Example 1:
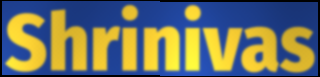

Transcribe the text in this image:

Shrinivas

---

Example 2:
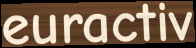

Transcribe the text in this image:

euractiv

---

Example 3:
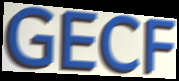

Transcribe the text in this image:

GECF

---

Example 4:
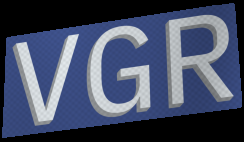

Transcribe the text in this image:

VGR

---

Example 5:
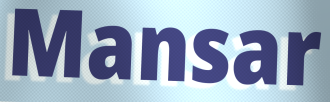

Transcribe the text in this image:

Mansar